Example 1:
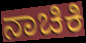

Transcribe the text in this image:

ನಾಚಿಕಿ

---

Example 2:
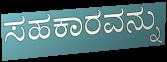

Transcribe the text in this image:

ಸಹಕಾರವನ್ನು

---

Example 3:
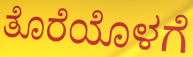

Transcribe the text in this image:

ತೊರೆಯೊಳಗೆ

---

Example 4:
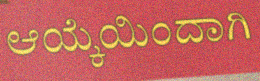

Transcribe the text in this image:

ಆಯ್ಕೆಯಿಂದಾಗಿ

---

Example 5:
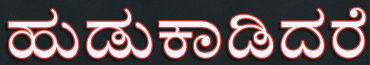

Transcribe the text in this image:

ಹುಡುಕಾಡಿದರೆ